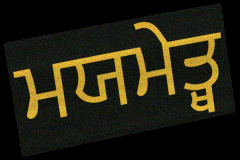
ਮਯਮੇਤ੍ਥ